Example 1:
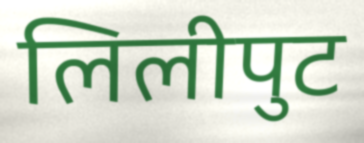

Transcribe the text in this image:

लिलीपुट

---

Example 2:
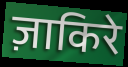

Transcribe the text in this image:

ज़ाकिरे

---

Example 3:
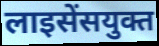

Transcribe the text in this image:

लाइसेंसयुक्त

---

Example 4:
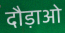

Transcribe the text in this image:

दौड़ाओ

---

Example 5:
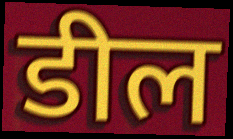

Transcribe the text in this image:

डील